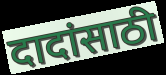
दादांसाठी